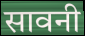
सावनी